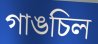
গাঙচিল